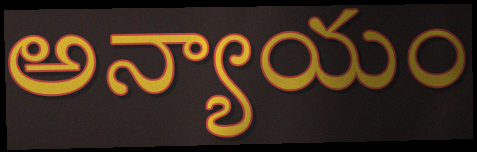
అన్యాయం